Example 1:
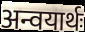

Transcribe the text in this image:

अन्वयार्थः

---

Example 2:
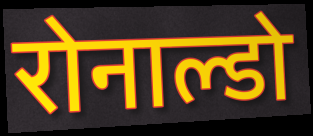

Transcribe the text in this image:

रोनाल्डो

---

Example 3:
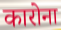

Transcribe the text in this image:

कारोना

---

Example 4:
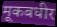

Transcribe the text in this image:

मूकबधीर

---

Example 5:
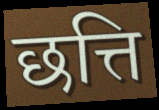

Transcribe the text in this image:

छत्ति